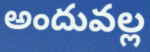
అందువల్ల